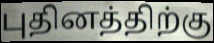
புதினத்திற்கு